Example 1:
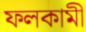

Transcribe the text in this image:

ফলকামী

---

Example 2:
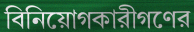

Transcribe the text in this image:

বিনিয়োগকারীগণের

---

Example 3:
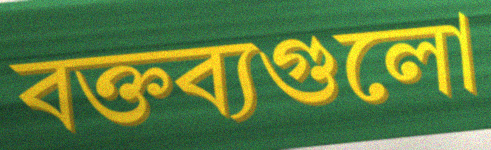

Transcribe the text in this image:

বক্তব্যগুলো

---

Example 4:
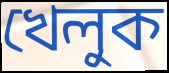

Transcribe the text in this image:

খেলুক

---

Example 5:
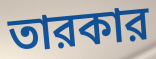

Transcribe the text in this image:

তারকার